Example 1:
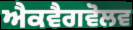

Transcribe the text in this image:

ਐਕਵੈਗਵੋਲਵ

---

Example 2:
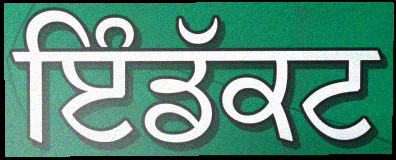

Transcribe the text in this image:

ਇੰਡੱਕਟ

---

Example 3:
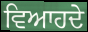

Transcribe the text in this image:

ਵਿਆਹਦੇ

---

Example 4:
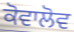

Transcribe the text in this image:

ਕੋਵਾਲੋਵ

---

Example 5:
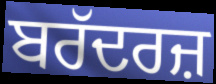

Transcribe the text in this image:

ਬਰੱਦਰਜ਼